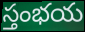
స్తంభయ